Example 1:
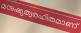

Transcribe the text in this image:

മനുഷ്യത്വരഹിതമാണ്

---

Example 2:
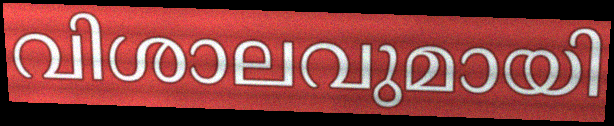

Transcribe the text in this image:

വിശാലവുമായി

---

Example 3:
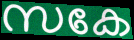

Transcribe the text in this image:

സകേ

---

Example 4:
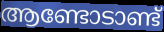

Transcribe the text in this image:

ആണ്ടോടാണ്ട്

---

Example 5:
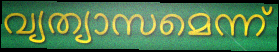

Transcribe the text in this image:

വ്യത്യാസമെന്ന്